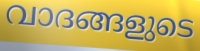
വാദങ്ങളുടെ